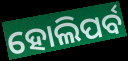
ହୋଲିପର୍ବ